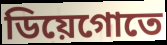
ডিয়েগোতে